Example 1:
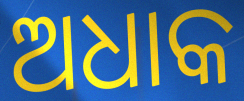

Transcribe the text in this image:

ଅଧାକ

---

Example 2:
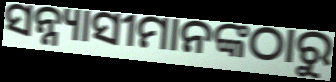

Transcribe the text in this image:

ସନ୍ନ୍ୟାସୀମାନଙ୍କଠାରୁ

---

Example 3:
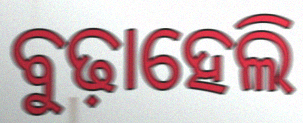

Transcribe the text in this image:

ବୁଢ଼ାହେଲି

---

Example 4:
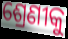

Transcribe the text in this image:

ଶ୍ରେଣୀକୁ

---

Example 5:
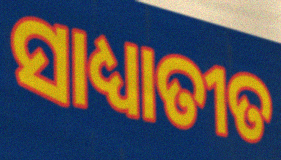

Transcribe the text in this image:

ସାଧ୍ୟାତୀତ